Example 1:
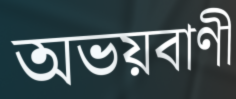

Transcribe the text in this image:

অভয়বাণী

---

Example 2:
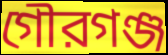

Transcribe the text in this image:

গৌরগঞ্জ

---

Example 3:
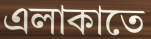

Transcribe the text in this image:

এলাকাতে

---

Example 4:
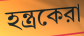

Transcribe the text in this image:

হন্ত্রকেরা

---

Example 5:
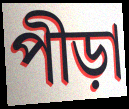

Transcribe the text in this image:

পীড়া